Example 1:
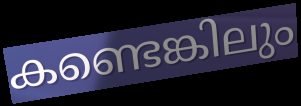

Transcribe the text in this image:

കണ്ടെങ്കിലും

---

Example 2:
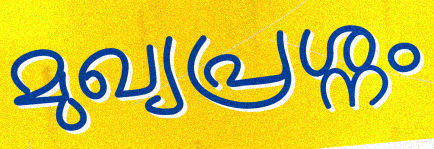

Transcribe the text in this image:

മുഖ്യപ്രശ്നം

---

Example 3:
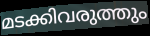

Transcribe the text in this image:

മടക്കിവരുത്തും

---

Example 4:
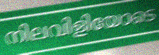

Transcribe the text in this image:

നിലവിളിയോടെ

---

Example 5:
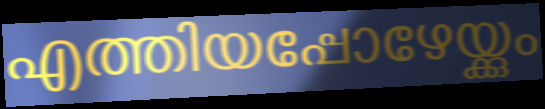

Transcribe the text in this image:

എത്തിയപ്പോഴേയ്ക്കും